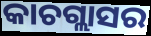
କାଚଗ୍ଲାସର